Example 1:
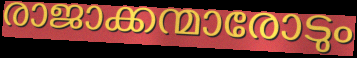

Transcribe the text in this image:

രാജാക്കന്മാരോടും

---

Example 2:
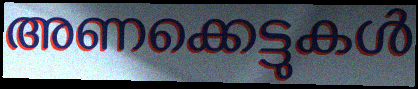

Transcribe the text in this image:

അണക്കെട്ടുകൾ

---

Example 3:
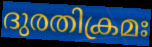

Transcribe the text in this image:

ദുരതിക്രമഃ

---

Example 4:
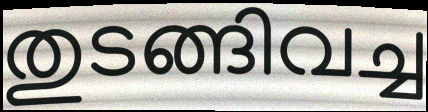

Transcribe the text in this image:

തുടങ്ങിവച്ച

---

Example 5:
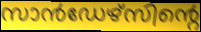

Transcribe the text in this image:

സാൻഡേഴ്സിന്റെ